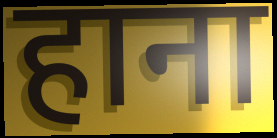
हाना